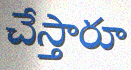
చేస్తారూ